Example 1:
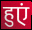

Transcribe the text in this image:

हुएं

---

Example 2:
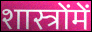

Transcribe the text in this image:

शास्त्रोंमें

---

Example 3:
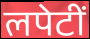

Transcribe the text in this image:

लपेटीं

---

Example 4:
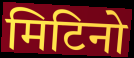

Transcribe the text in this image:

मिटिनो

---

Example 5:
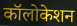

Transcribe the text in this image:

कॉलोकेशन